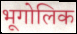
भूगोलिक